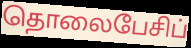
தொலைபேசிப்